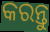
କରନ୍ତୁ